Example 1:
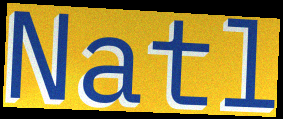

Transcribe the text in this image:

Natl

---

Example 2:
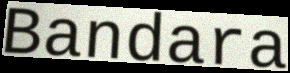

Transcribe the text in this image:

Bandara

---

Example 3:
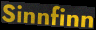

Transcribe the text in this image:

Sinnfinn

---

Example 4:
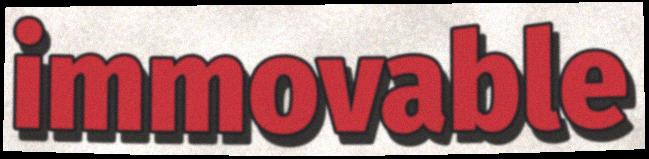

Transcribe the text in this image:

immovable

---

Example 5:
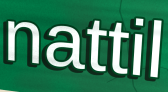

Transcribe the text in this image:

nattil